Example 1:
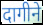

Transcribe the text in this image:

दागीने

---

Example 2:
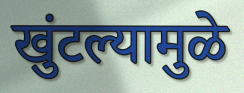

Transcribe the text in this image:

खुंटल्यामुळे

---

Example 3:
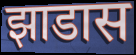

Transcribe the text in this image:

झाडास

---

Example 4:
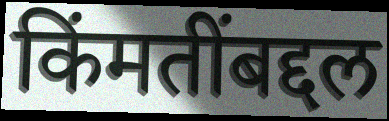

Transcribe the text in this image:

किंमतींबद्दल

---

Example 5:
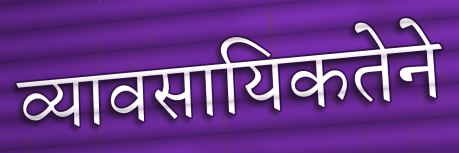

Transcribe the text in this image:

व्यावसायिकतेने